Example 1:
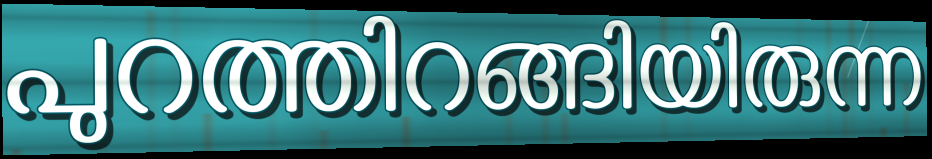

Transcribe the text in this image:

പുറത്തിറങ്ങിയിരുന്ന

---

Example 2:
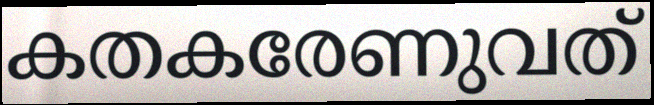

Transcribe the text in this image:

കതകരേണുവത്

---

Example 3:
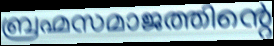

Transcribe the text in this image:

ബ്രഹ്മസമാജത്തിന്റെ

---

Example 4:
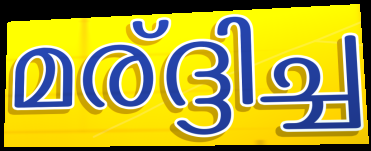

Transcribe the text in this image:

മര്ദ്ദിച്ച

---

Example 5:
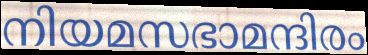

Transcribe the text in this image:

നിയമസഭാമന്ദിരം